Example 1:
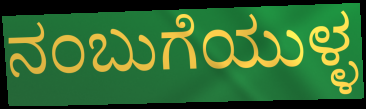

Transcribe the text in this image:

ನಂಬುಗೆಯುಳ್ಳ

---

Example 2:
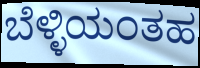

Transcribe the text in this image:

ಬೆಳ್ಳಿಯಂತಹ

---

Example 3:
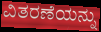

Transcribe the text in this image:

ವಿತರಣೆಯನ್ನು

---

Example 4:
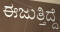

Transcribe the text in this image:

ಈಜುತ್ತಿದ್ದೆ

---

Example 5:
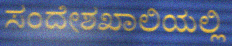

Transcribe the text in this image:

ಸಂದೇಶಖಾಲಿಯಲ್ಲಿ